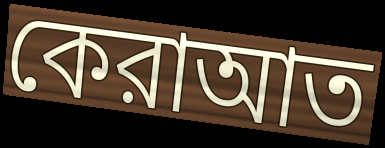
কেরাআত